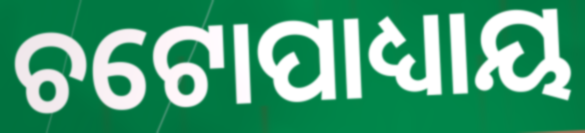
ଚଟୋପାଧ୍ୟାୟ